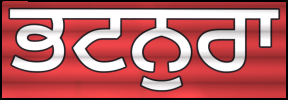
ਭਟਨੁਰਾ